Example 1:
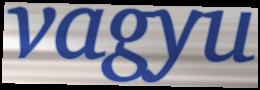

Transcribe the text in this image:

vagyu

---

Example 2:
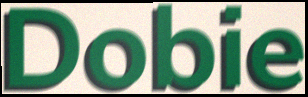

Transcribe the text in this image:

Dobie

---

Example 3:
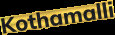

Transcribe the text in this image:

Kothamalli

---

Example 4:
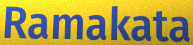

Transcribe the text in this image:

Ramakata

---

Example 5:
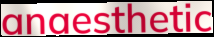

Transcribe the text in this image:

anaesthetic